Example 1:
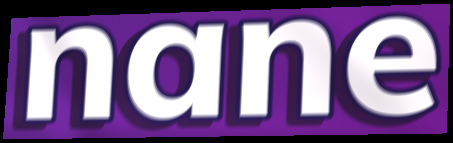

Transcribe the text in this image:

nane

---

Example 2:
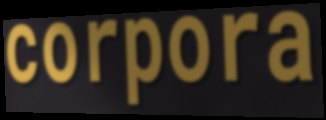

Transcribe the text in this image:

corpora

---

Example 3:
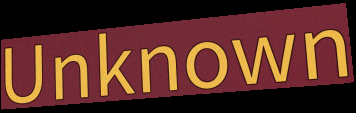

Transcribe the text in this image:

Unknown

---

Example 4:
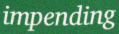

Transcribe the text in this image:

impending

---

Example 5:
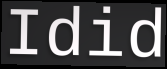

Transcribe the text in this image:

Idid